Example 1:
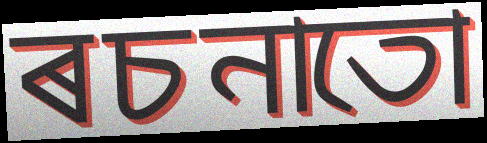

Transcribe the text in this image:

ৰচনাতো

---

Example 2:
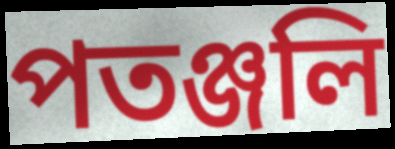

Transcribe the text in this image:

পতঞ্জলি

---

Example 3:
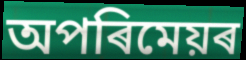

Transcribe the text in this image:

অপৰিমেয়ৰ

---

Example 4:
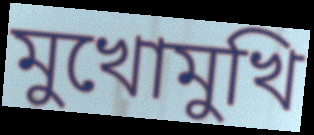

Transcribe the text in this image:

মুখোমুখি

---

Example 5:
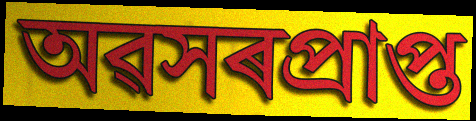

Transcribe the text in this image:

অৱসৰপ্ৰাপ্ত